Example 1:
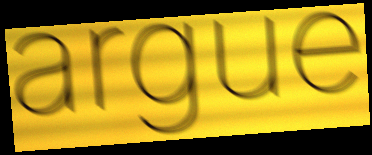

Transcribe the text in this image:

argue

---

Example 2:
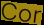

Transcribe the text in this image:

Cor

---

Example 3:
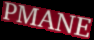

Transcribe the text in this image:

PMANE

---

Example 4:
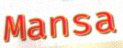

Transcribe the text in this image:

Mansa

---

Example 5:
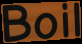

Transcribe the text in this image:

Boil